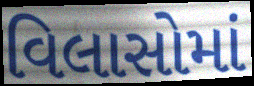
વિલાસોમાં